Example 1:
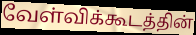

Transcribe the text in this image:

வேள்விக்கூடத்தின்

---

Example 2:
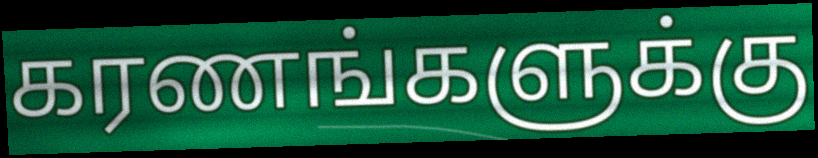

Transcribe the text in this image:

கரணங்களுக்கு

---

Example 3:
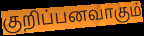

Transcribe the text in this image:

குறிப்பனவாகும்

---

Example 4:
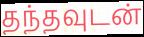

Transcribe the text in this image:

தந்தவுடன்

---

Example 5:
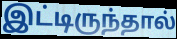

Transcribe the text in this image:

இட்டிருந்தால்